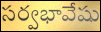
సర్వభావేషు